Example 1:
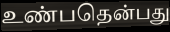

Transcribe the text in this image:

உண்பதென்பது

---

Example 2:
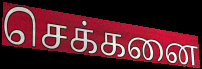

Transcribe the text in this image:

செக்கனை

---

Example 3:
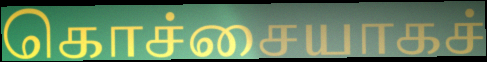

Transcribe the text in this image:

கொச்சையாகச்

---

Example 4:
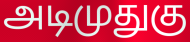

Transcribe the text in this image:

அடிமுதுகு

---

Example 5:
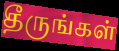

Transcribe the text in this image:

தீருங்கள்